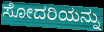
ಸೋದರಿಯನ್ನು